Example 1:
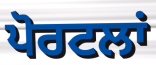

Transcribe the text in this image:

ਪੋਰਟਲਾਂ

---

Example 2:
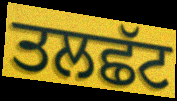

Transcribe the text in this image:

ਤਲਛੱਟ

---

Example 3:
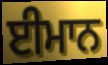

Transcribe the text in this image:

ਈਮਾਨ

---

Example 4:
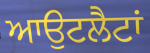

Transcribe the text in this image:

ਆਉਟਲੈਟਾਂ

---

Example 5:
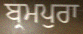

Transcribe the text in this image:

ਬ੍ਰਮਪੁਰਾ